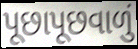
પૂછાપૂછવાળું